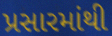
પ્રસારમાંથી